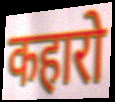
कहारो